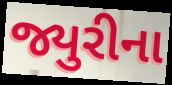
જ્યુરીના